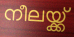
നീലയ്ക്ക്